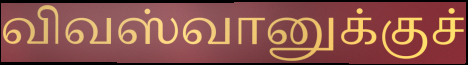
விவஸ்வானுக்குச்